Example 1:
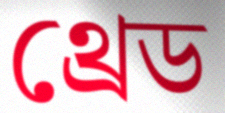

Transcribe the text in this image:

থ্রেড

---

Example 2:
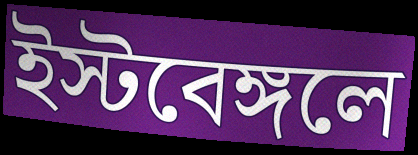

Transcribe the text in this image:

ইস্টবেঙ্গলে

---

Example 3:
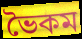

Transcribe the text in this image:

ভৈকম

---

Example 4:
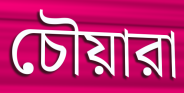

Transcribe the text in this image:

চৌয়ারা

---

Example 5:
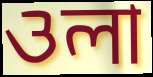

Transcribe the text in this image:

ওলা